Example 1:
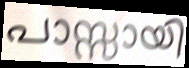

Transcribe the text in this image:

പാസ്സായി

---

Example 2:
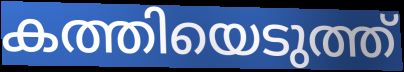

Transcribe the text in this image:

കത്തിയെടുത്ത്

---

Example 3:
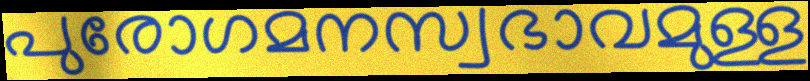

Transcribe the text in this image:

പുരോഗമനസ്വഭാവമുള്ള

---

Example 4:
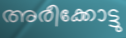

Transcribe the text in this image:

അരീക്കോട്ടു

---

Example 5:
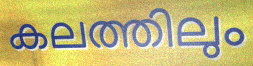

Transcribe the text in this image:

കലത്തിലും